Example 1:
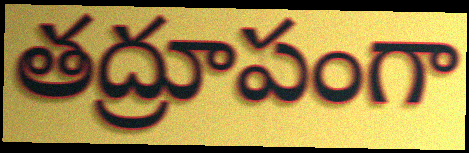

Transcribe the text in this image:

తద్రూపంగా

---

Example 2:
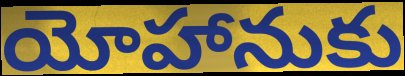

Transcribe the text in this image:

యోహానుకు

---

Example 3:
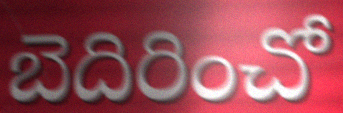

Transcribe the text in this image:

బెదిరించో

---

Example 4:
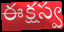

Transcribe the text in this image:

ఈక్షస్వ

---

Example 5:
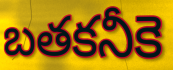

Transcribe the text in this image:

బతకనీకె